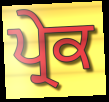
ਪ੍ਰੇਕ